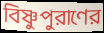
বিষ্ণুপুরাণের